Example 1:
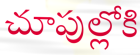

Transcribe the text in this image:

చూపుల్లోకి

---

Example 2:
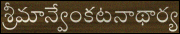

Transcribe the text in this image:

శ్రీమాన్వేంకటనాథార్య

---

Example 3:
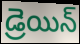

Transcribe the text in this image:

డ్రెయిన్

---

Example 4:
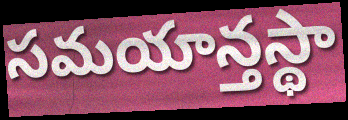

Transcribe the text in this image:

సమయాన్తస్థా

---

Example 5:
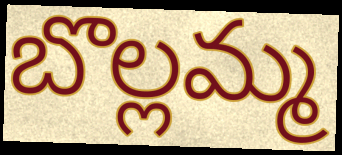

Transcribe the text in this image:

బొల్లమ్మ